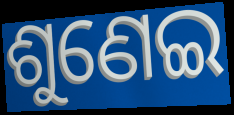
ଶୁଣେଇ